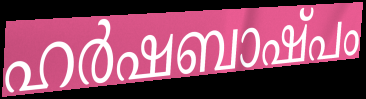
ഹർഷബാഷ്പം